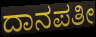
ದಾನಪತೀ